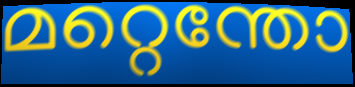
മറ്റെന്തോ